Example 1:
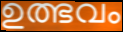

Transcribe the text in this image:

ഉത്ഭവം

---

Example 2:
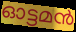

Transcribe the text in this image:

ഓട്ടമൻ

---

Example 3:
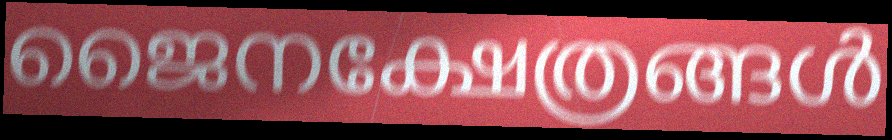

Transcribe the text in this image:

ജൈനക്ഷേത്രങ്ങൾ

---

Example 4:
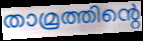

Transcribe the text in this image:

താമ്രത്തിന്റെ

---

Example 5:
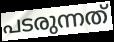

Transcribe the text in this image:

പടരുന്നത്